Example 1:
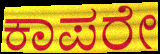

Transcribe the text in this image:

ಕಾಪರೇ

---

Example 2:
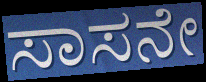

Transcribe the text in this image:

ಸಾಸನೇ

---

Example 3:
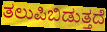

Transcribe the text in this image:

ತಲುಪಿಬಿಡುತ್ತದೆ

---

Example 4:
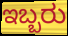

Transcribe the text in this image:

ಇಬ್ಬರು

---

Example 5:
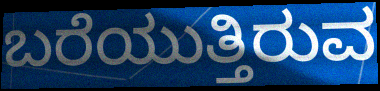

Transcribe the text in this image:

ಬರೆಯುತ್ತಿರುವ